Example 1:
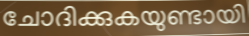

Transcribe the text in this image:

ചോദിക്കുകയുണ്ടായി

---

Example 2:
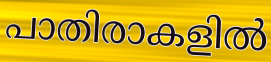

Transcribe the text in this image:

പാതിരാകളിൽ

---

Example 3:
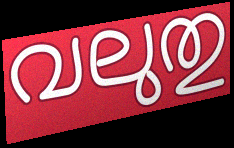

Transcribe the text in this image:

വലുതു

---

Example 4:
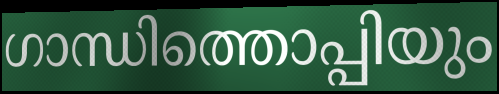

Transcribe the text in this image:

ഗാന്ധിത്തൊപ്പിയും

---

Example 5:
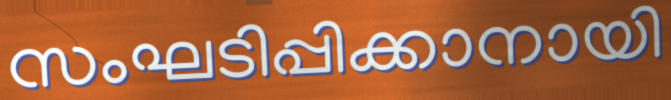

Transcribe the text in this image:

സംഘടിപ്പിക്കാനായി